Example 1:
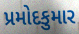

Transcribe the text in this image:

પ્રમોદકુમાર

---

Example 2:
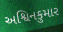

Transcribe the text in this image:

અશ્વિનકુમાર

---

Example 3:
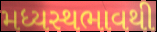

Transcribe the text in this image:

મધ્યસ્થભાવથી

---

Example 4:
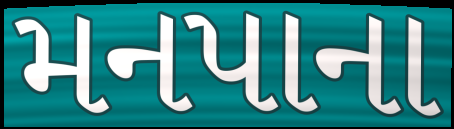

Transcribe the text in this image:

મનપાના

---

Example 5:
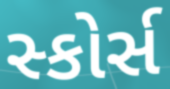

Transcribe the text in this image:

સ્કોર્સ